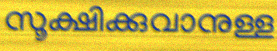
സൂക്ഷിക്കുവാനുള്ള